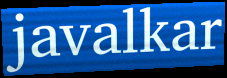
javalkar